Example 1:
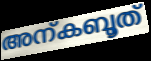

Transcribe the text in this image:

അന്കബൂത്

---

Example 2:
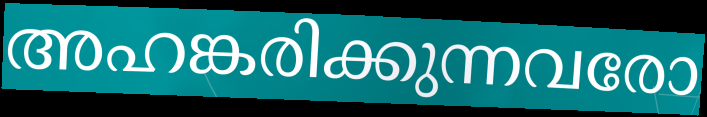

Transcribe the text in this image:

അഹങ്കരിക്കുന്നവരോ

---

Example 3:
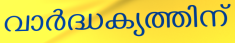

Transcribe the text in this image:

വാർദ്ധക്യത്തിന്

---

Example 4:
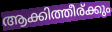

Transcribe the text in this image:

ആക്കിത്തീര്ക്കും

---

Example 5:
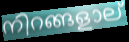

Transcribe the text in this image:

നിറങ്ങളാല്